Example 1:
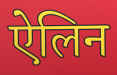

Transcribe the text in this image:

ऐलिन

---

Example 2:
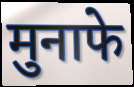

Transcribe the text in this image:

मुनाफे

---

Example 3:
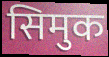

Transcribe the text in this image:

सिमुक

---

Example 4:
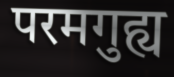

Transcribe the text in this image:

परमगुह्य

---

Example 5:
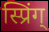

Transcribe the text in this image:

स्प्रिंग्